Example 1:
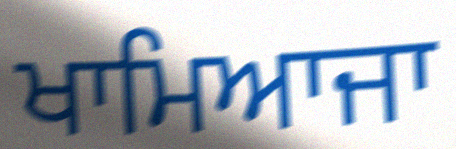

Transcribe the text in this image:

ਖਾਮਿਆਜਾ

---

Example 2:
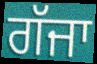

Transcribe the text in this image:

ਗੱਜਾ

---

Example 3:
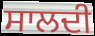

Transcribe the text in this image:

ਸਾਲਦੀ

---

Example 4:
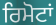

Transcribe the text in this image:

ਰਿਮੋਟਾਂ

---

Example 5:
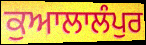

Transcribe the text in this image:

ਕੁਆਲਾਲੰਪੁਰ